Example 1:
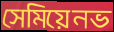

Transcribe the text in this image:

সেমিয়েনভ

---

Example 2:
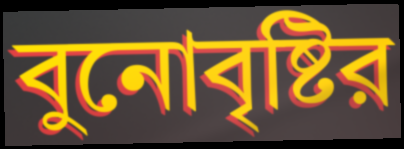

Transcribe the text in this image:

বুনোবৃষ্টির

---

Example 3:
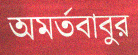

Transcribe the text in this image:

অমর্তবাবুর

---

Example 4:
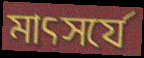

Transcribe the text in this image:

মাৎসর্যে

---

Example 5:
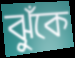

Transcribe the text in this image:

ঝুঁকে